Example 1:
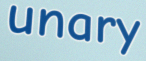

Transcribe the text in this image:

unary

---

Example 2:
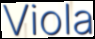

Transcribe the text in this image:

Viola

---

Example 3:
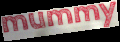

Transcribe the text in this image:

mummy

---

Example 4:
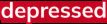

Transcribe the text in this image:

depressed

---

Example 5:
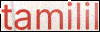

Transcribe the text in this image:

tamilil